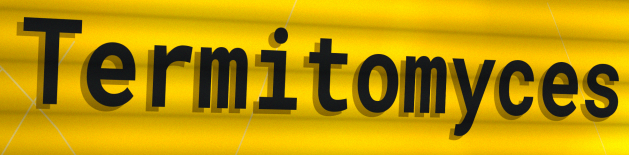
Termitomyces